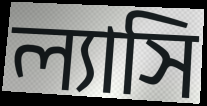
ল্যাসি